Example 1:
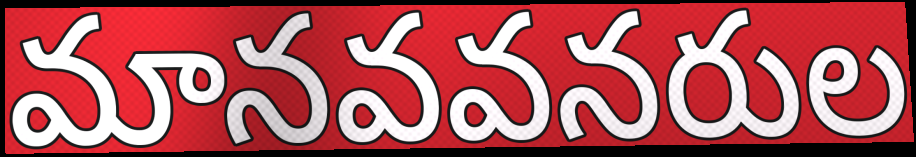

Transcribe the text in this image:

మానవవనరుల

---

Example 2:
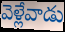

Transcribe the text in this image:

వెళ్లేవాడు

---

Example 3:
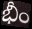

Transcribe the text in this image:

భీం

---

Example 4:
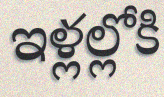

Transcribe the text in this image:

ఇళ్లల్లోకి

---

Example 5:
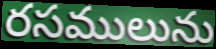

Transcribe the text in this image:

రసములును